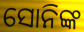
ସୋନିଙ୍କ